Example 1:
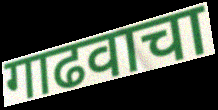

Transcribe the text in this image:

गाढवाचा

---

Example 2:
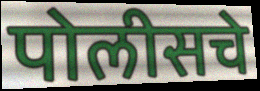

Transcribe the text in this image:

पोलीसचे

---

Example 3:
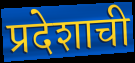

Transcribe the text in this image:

प्रदेशाची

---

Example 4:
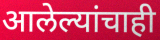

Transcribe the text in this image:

आलेल्यांचाही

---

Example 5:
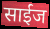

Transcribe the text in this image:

साईज